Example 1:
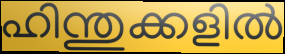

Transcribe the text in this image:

ഹിന്തുക്കളിൽ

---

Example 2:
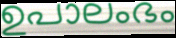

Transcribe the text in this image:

ഉപാലംഭം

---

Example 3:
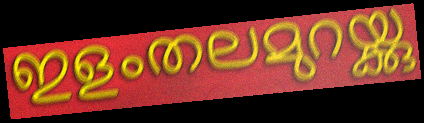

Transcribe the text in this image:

ഇളംതലമുറയ്ക്കു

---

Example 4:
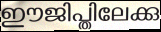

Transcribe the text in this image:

ഈജിപ്തിലേക്കു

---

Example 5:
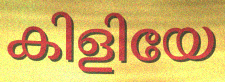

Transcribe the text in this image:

കിളിയേ